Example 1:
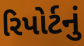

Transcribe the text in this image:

રિપોર્ટનું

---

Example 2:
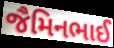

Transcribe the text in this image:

જૈમિનભાઈ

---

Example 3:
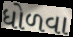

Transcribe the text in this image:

ધોળવા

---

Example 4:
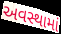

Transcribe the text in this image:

અવસ્થામાં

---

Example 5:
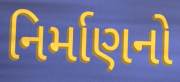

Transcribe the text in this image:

નિર્માણનો